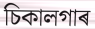
চিকালগাৰ